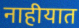
नाहीयात